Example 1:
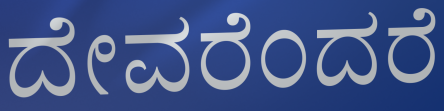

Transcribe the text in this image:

ದೇವರೆಂದರೆ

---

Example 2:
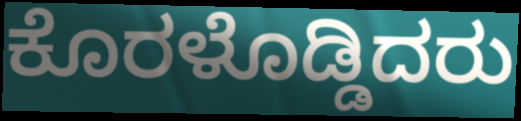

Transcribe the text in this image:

ಕೊರಳೊಡ್ಡಿದರು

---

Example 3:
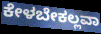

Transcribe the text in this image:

ಕೇಳಬೇಕಲ್ಲವಾ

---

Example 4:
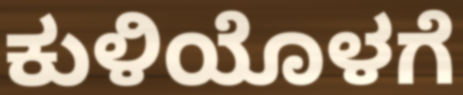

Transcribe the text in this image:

ಕುಳಿಯೊಳಗೆ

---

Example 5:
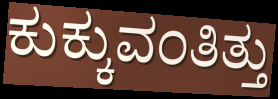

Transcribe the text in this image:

ಕುಕ್ಕುವಂತಿತ್ತು